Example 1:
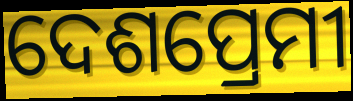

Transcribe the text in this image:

ଦେଶପ୍ରେମୀ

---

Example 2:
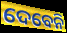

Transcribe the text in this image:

ଦେବେନି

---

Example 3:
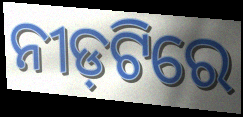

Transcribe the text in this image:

ନୀଡ଼ଟିରେ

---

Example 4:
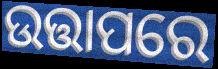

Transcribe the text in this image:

ଉତ୍ତାପରେ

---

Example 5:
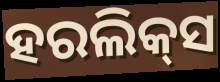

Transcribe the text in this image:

ହରଲିକ୍‍ସ